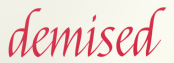
demised